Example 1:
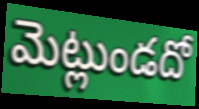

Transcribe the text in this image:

మెట్లుండదో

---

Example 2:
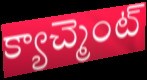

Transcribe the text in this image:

క్యాచ్మెంట్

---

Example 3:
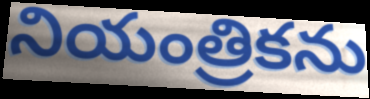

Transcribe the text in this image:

నియంత్రికను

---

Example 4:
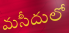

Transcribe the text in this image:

మసీదులో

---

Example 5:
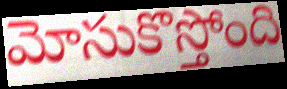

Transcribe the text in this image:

మోసుకొస్తోంది